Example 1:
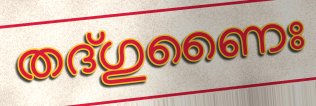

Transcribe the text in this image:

തദ്ഗുണൈഃ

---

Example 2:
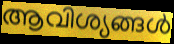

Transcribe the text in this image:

ആവിശ്യങ്ങൾ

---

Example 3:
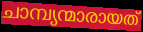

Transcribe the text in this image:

ചാമ്പ്യന്മാരായത്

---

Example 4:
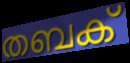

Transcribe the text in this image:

തബക്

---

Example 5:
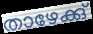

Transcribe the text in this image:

താഴേക്കു്